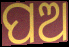
ପଅ